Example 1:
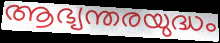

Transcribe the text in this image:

ആഭ്യന്തരയുദ്ധം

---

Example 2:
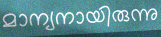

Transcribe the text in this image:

മാന്യനായിരുന്നു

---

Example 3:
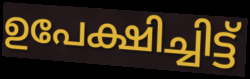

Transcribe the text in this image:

ഉപേക്ഷിച്ചിട്ട്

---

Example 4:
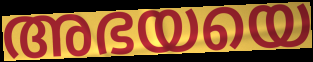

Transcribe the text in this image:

അഭയയെ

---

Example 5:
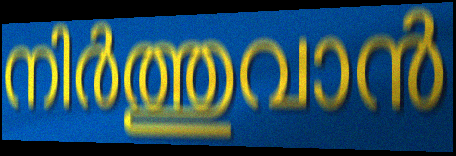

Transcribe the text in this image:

നിർത്തുവാൻ